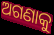
ଅଗଣାକୁ